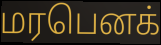
மரபெனக்